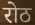
रोठ